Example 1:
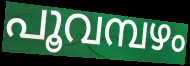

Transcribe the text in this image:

പൂവമ്പഴം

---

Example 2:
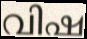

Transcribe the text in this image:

വിഷ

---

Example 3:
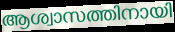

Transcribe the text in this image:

ആശ്വാസത്തിനായി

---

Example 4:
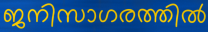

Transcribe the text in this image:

ജനിസാഗരത്തിൽ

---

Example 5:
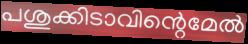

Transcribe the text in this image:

പശുക്കിടാവിന്റെമേൽ